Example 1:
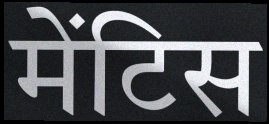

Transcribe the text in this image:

मेंटिस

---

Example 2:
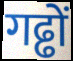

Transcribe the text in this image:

गढ्ढों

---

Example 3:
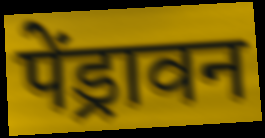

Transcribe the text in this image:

पेंड्रावन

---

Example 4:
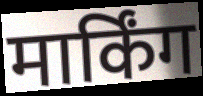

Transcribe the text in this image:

मार्किंग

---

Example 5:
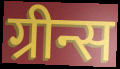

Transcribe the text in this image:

ग्रीन्स